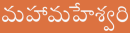
మహామహేశ్వరి